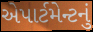
એપાર્ટમેન્ટનું